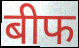
बीफ